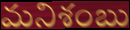
మనిశంబు